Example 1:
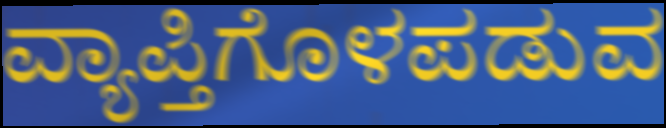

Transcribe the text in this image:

ವ್ಯಾಪ್ತಿಗೊಳಪಡುವ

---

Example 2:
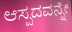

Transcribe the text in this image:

ಆಸ್ಪದವನ್ನೇ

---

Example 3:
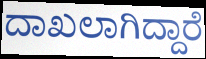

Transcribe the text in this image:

ದಾಖಲಾಗಿದ್ದಾರೆ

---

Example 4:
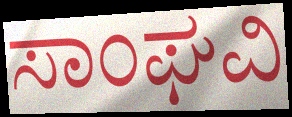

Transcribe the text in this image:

ಸಾಂಘವಿ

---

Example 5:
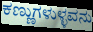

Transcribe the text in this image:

ಕಣ್ಣುಗಳುಳ್ಳವನು